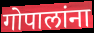
गोपालांना